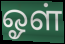
ஓள்